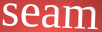
seam